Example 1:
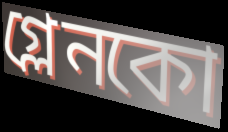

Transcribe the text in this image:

গ্লেনকো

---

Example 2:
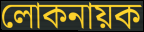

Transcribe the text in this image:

লোকনায়ক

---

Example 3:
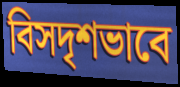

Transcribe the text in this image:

বিসদৃশভাবে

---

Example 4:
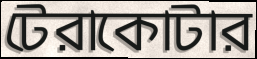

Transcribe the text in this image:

টেরাকোটার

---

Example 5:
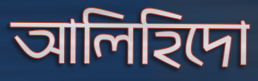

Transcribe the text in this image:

আলিহিদো